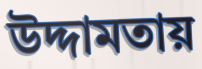
উদ্দামতায়